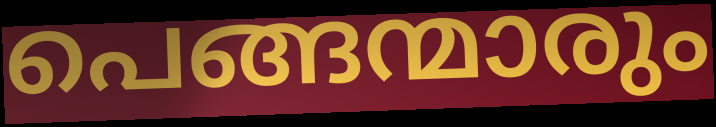
പെങ്ങന്മാരും